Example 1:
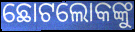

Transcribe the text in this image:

ଛୋଟଲୋକଙ୍କୁ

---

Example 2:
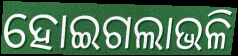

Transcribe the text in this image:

ହୋଇଗଲାଭଳି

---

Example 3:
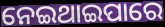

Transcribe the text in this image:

ନେଇଥାଇପାରେ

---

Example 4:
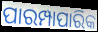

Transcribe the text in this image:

ପାରମ୍ପାପାରିକ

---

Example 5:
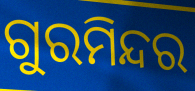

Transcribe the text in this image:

ଗୁରମିନ୍ଦର